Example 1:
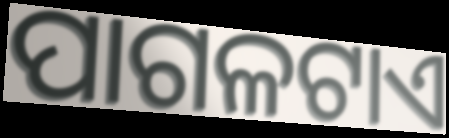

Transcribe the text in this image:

ପାଗଳଟାଏ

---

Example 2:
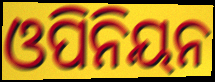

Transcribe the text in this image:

ଓପିନିୟନ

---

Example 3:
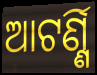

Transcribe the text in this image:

ଆଟର୍ଣ୍ଣି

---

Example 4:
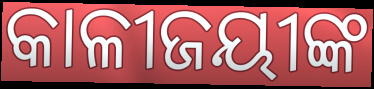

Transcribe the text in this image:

କାଳୀଜୟୀଙ୍କ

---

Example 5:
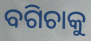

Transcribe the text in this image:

ବଗିଚାକୁ